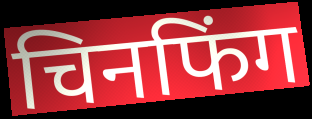
चिनफिंग